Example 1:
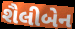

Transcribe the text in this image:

શૈલીબેન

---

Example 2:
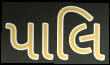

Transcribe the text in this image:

પાલિ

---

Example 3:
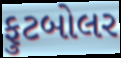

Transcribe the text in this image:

ફુટબોલર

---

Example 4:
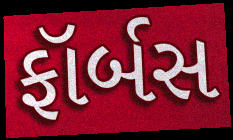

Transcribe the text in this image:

ફૉર્બસ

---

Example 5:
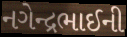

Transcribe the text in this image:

નગેન્દ્રભાઈની